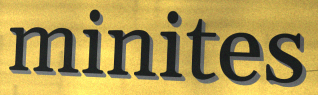
minites